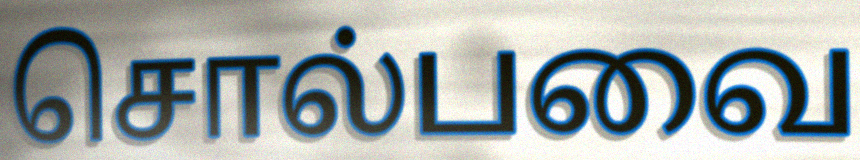
சொல்பவை